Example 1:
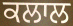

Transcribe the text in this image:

ਕਲਾਲ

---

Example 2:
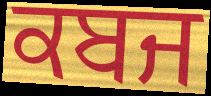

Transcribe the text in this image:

ਕਬਜ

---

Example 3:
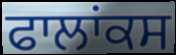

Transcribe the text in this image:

ਫਾਲਾਂਕਸ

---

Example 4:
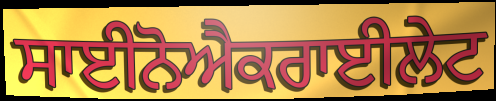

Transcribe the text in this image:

ਸਾਈਨੋਐਕਰਾਈਲੇਟ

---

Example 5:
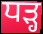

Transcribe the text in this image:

ਧੜ੍ਹ